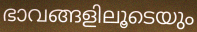
ഭാവങ്ങളിലൂടെയും